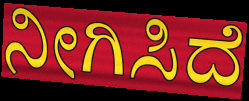
ನೀಗಿಸಿದೆ